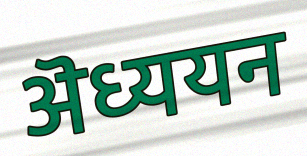
ऄध्ययन